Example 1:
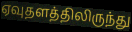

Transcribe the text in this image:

ஏவுதளத்திலிருந்து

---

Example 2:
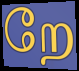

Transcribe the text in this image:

றே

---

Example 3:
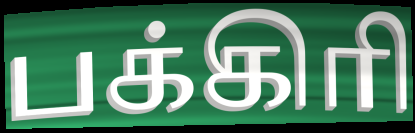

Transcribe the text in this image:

பக்கிரி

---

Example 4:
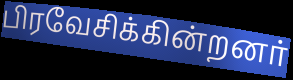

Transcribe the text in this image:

பிரவேசிக்கின்றனர்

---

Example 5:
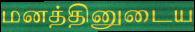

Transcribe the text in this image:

மனத்தினுடைய